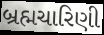
બ્રહ્મચારિણી